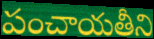
పంచాయతీని